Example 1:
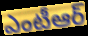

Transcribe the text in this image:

ఎంటీఆర్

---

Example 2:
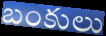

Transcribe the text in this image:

బంకులు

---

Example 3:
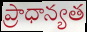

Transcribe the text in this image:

ప్రాధాన్యత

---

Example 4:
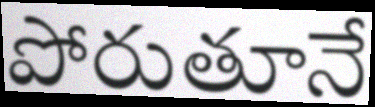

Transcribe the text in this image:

పోరుతూనే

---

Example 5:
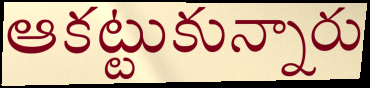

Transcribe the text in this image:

ఆకట్టుకున్నారు